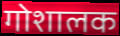
गोशालक